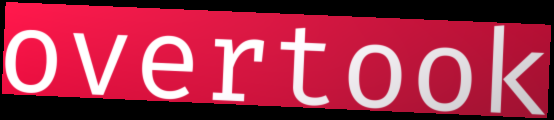
overtook